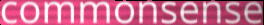
commonsense